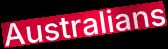
Australians